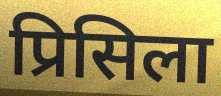
प्रिसिला